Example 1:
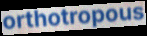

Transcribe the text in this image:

orthotropous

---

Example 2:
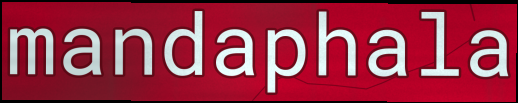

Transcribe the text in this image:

mandaphala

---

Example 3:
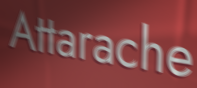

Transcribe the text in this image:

Attarache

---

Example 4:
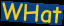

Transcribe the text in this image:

WHat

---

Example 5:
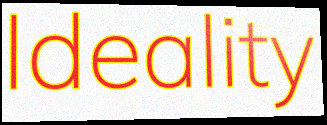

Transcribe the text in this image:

Ideality